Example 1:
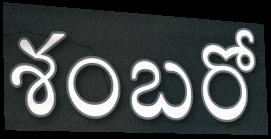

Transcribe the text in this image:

శంబరో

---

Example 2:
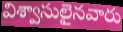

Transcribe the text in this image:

విశ్వాసులైనవారు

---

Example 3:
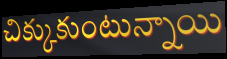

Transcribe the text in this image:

చిక్కుకుంటున్నాయి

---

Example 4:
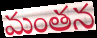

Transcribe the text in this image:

మంతన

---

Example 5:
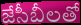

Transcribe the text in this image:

జేసీబీలతో